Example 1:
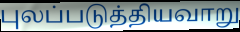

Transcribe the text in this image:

புலப்படுத்தியவாறு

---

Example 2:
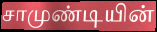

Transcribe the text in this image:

சாமுண்டியின்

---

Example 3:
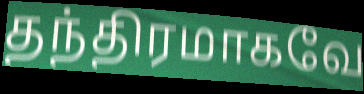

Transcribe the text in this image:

தந்திரமாகவே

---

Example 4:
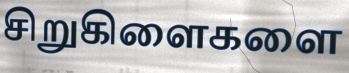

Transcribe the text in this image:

சிறுகிளைகளை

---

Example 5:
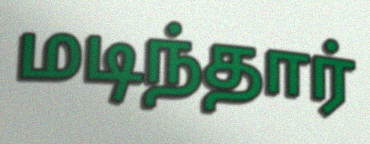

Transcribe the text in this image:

மடிந்தார்